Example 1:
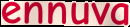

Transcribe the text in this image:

ennuva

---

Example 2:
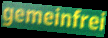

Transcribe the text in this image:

gemeinfrei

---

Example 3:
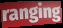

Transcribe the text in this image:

ranging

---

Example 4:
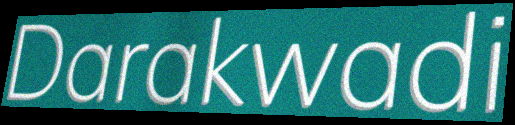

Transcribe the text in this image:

Darakwadi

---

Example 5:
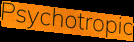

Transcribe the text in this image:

Psychotropic